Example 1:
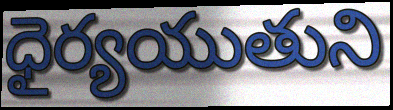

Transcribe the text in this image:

ధైర్యయుతుని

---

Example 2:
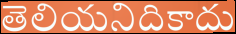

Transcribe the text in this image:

తెలియనిదికాదు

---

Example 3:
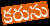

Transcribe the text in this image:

కరుసు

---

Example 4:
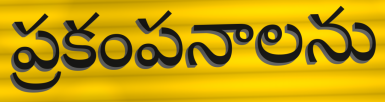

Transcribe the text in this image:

ప్రకంపనాలను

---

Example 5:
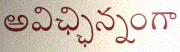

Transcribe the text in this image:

అవిఛ్ఛిన్నంగా